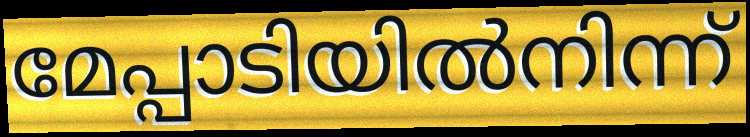
മേപ്പാടിയിൽനിന്ന്